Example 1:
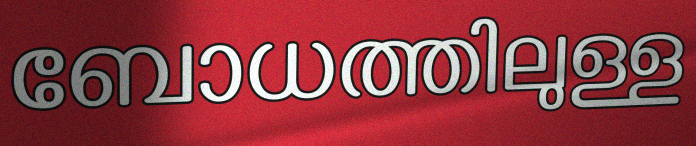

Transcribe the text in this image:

ബോധത്തിലുള്ള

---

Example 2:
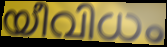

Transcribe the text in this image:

യീവിധം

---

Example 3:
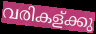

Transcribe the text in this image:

വരികള്ക്കു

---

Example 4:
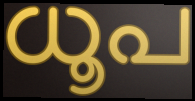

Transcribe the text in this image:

ധൂപ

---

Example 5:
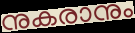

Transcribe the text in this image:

നുകരാനും